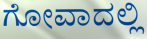
ಗೋವಾದಲ್ಲಿ